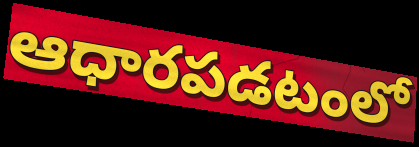
ఆధారపడటంలో